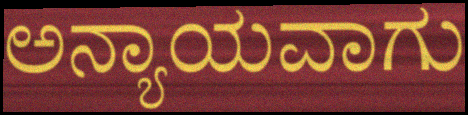
ಅನ್ಯಾಯವಾಗು